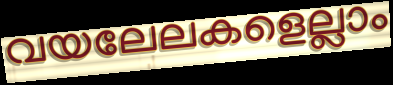
വയലേലകളെല്ലാം